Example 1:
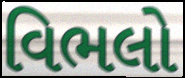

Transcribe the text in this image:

વિભલો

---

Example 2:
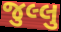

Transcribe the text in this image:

જુલ્લુ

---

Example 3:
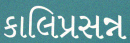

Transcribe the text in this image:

કાલિપ્રસન્ન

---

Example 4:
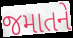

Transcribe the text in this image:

જમાતને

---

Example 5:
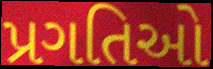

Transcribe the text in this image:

પ્રગતિઓ